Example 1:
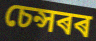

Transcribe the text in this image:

চেন্সৰৰ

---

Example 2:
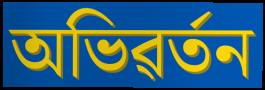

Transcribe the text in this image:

অভিৱৰ্তন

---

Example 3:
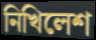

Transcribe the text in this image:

নিখিলেশ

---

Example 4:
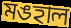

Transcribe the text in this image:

মঙহাল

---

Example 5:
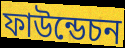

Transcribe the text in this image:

ফাউন্ডেচন